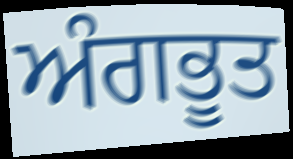
ਅੰਗਭੂਤ